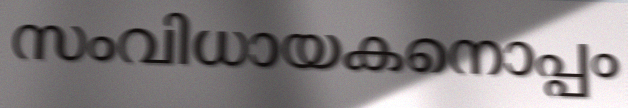
സംവിധായകനൊപ്പം